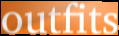
outfits